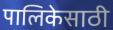
पालिकेसाठी